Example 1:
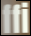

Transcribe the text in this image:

ffi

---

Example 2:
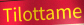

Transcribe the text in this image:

Tilottame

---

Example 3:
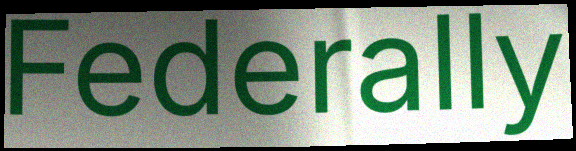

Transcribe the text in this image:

Federally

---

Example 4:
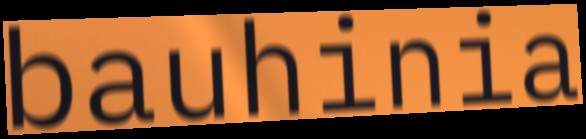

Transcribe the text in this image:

bauhinia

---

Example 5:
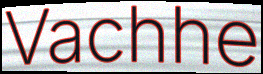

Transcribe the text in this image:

Vachhe